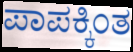
ಪಾಪಕ್ಕಿಂತ